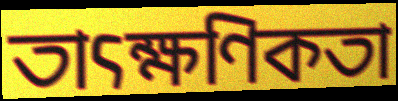
তাৎক্ষণিকতা